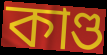
কাণ্ড